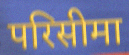
परिसीमा